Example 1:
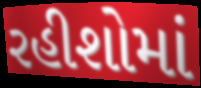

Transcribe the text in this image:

રહીશોમાં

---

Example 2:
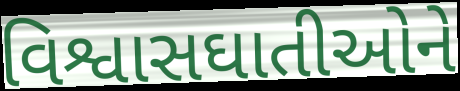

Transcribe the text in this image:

વિશ્વાસઘાતીઓને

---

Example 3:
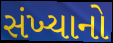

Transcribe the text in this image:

સંખ્યાનો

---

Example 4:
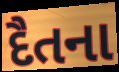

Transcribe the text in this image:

દૈતના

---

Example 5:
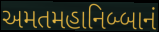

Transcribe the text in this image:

અમતમહાનિબ્બાનં